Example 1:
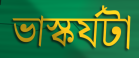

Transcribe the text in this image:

ভাস্কর্যটা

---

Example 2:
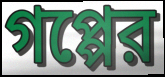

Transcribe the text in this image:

গপ্পের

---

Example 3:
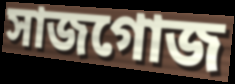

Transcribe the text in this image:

সাজগোজ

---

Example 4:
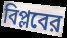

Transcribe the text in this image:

বিপ্লবের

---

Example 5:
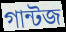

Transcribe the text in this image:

গান্টজ